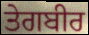
ਤੇਗਬੀਰ